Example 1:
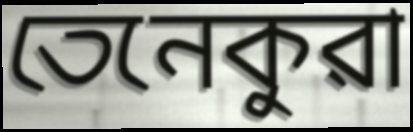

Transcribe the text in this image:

তেনেকুৱা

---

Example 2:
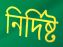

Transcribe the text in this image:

নিৰ্দিষ্ট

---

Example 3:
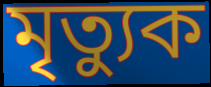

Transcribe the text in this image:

মৃত্যুক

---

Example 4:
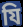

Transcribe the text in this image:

যি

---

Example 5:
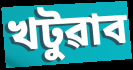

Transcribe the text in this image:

খটুৱাব